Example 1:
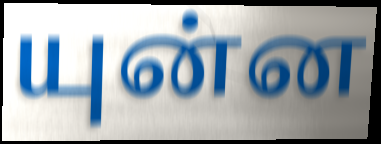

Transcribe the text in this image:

யுன்ன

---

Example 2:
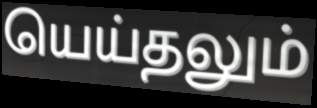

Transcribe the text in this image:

யெய்தலும்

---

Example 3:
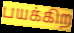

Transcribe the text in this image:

பயக்கிற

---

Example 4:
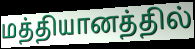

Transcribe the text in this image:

மத்தியானத்தில்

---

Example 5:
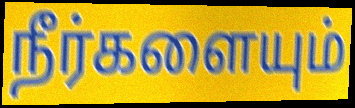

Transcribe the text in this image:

நீர்களையும்